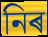
নিৰ